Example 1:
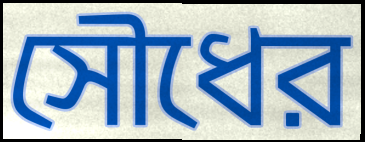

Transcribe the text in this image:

সৌধের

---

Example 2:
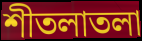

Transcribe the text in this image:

শীতলাতলা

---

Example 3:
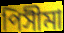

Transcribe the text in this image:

পিসীমা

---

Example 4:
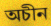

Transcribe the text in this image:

অচীন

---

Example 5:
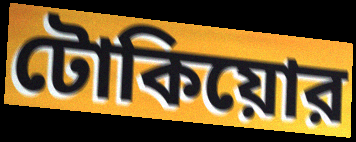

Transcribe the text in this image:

টোকিয়োর